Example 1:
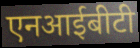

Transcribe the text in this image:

एनआईबीटी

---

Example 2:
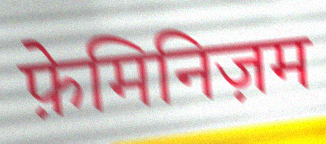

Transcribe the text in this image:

फ़ेमिनिज़म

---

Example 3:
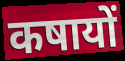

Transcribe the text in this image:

कषायों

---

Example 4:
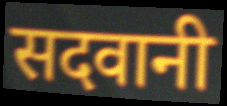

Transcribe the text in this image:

सदवानी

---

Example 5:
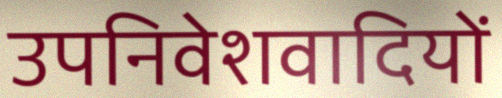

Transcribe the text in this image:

उपनिवेशवादियों